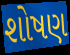
શોષણ